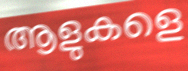
ആളുകളെ